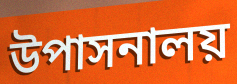
উপাসনালয়